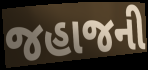
જહાજની